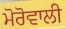
ਮੋਰੋਵਾਲੀ